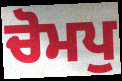
ਚੋਮਪੁ